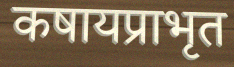
कषायप्राभृत